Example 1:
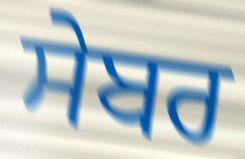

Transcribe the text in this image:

ਸੇਬਰ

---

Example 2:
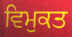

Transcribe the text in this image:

ਵਿਮੁਕਤ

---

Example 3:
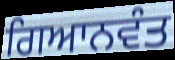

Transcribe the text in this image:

ਗਿਆਨਵੰਤ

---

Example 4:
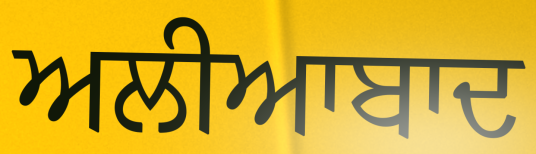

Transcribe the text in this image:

ਅਲੀਆਬਾਦ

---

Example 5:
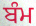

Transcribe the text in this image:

ਬੰਮ